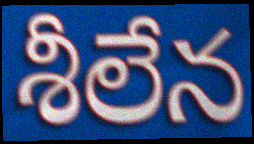
శీలేన